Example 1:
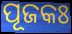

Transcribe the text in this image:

ପୂଜକଃ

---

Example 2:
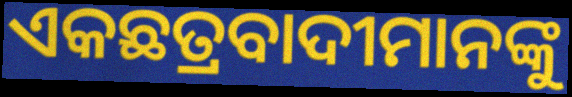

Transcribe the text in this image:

ଏକଛତ୍ରବାଦୀମାନଙ୍କୁ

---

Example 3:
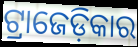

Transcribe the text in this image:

ଟ୍ରାଜେଡ଼ିକାର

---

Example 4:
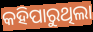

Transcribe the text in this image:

କହିପାରୁଥିଲା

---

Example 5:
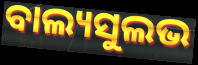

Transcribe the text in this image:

ବାଲ୍ୟସୁଲଭ